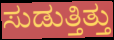
ಸುಡುತ್ತಿತ್ತು